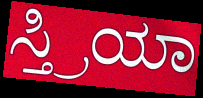
ಸ್ತ್ರಿಯಾ